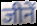
जीनें